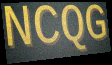
NCQG